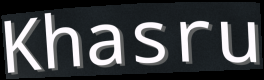
Khasru